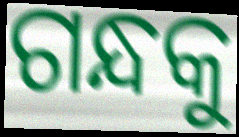
ଗନ୍ଧକୁ